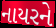
નાયરને